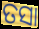
ତସା